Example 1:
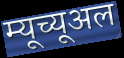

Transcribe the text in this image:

म्यूच्यूअल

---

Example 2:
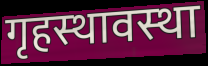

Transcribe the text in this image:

गृहस्थावस्था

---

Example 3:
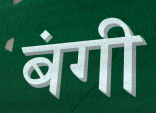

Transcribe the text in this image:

बंगी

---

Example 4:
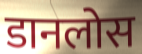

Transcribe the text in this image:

डानलोस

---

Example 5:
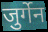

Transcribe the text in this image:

जुर्गेन